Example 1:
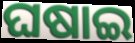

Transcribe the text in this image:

ଘଷାଇ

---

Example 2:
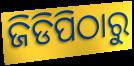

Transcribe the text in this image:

ଜିଡିପିଠାରୁ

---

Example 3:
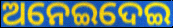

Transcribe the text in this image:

ଅନେଇଦେଇ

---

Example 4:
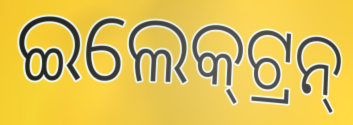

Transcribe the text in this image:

ଇଲେକ୍‌ଟ୍ରନ୍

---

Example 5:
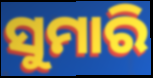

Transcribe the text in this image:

ସୁମାରି